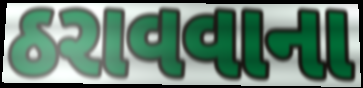
ઠરાવવાના